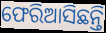
ଫେରିଆସିଛନ୍ତି